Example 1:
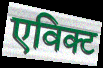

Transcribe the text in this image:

एविक्ट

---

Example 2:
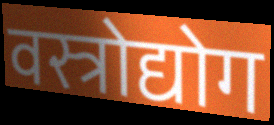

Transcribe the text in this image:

वस्त्रोद्योग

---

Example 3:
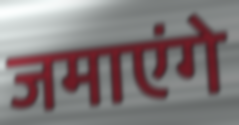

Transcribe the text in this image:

जमाएंगे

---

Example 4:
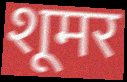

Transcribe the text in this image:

शूमर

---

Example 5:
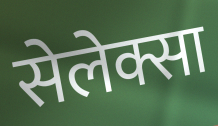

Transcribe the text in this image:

सेलेक्सा